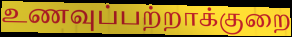
உணவுப்பற்றாக்குறை